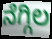
ನೆಗ್ಗಿಲ